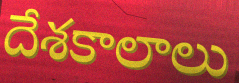
దేశకాలాలు